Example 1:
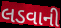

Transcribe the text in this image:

લડવાની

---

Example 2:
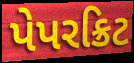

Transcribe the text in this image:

પેપરક્રિટ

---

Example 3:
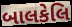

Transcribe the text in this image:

બાલકેલિ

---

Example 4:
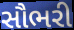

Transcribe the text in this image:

સૌભરી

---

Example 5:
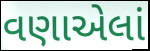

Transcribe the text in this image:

વણાએલાં